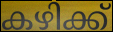
കഴിക്ക്